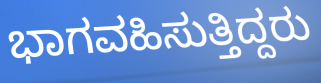
ಭಾಗವಹಿಸುತ್ತಿದ್ದರು